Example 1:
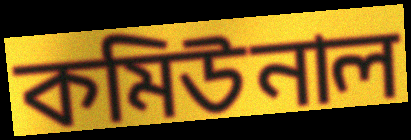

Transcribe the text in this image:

কমিউনাল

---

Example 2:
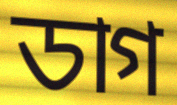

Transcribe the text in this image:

ডাগ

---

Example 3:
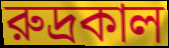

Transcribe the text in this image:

রুদ্রকাল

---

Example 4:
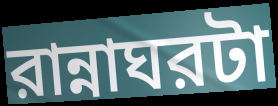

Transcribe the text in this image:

রান্নাঘরটা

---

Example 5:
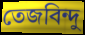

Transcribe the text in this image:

তেজবিন্দু